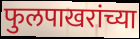
फुलपाखरांच्या